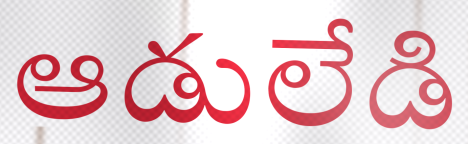
ఆడులేడి